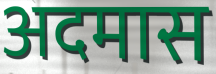
अदमास